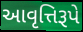
આવૃત્તિરૂપે